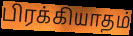
பிரக்கியாதம்